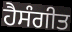
ਹੈਸੰਗੀਤ